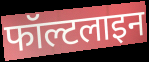
फॉल्टलाइन